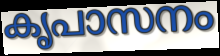
കൃപാസനം